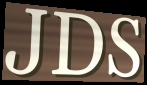
JDS